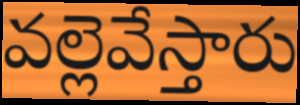
వల్లెవేస్తారు